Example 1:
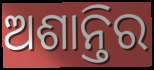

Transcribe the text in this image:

ଅଶାନ୍ତିର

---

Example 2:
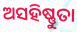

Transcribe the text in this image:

ଅସହିଷ୍ଣୁତା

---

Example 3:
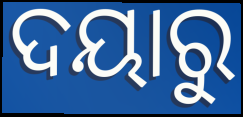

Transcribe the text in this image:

ଦୟାରୁ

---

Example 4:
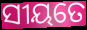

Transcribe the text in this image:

ସୀୟତେ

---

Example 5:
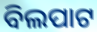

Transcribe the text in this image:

ବିଲପାଟ